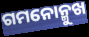
ଗମନୋନ୍ମୁଖ